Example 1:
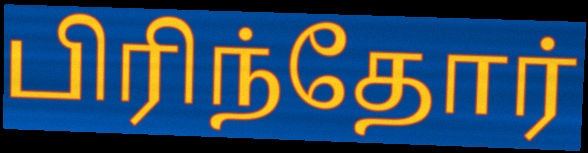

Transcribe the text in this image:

பிரிந்தோர்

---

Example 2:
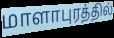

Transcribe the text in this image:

மாளாபுரத்தில்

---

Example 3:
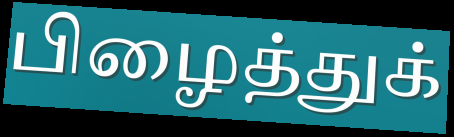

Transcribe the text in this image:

பிழைத்துக்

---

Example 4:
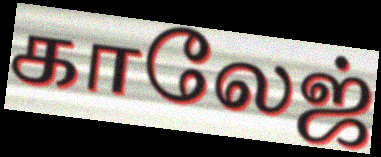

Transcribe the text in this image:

காலேஜ்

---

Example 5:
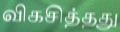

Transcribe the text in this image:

விகசித்தது